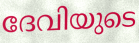
ദേവിയുടെ